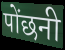
पोंछनी